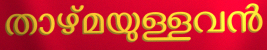
താഴ്മയുള്ളവൻ